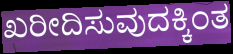
ಖರೀದಿಸುವುದಕ್ಕಿಂತ